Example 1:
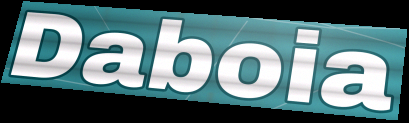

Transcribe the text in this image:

Daboia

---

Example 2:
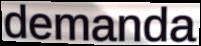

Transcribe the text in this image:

demanda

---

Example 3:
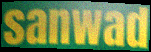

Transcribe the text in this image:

sanwad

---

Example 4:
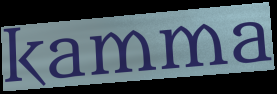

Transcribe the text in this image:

kamma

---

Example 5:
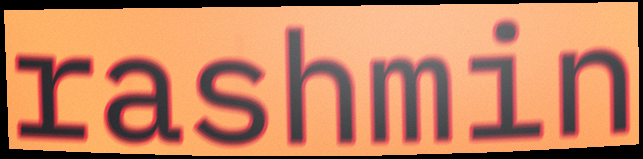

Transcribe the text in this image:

rashmin